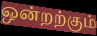
ஒன்றற்கும்